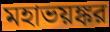
মহাভয়ঙ্কর